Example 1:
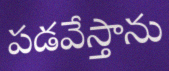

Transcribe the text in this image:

పడవేస్తాను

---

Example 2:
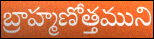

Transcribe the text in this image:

బ్రాహ్మణోత్తముని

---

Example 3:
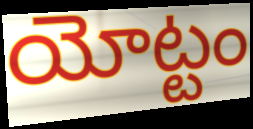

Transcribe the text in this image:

యోట్టం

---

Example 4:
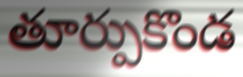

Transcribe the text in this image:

తూర్పుకొండ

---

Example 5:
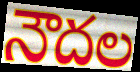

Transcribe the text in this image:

నౌదల